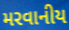
મરવાનીય